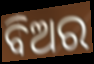
ବିଅର